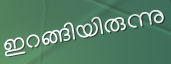
ഇറങ്ങിയിരുന്നു